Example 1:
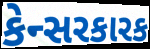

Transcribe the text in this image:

કેન્સરકારક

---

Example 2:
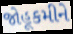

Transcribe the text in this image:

જોહૂકમીને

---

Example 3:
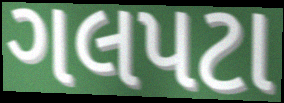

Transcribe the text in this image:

ગલપટા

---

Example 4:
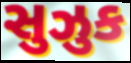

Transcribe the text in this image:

સુઝુક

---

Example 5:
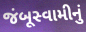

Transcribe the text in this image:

જંબૂસ્વામીનું